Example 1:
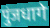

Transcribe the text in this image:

पुंजधागे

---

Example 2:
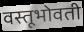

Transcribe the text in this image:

वस्तूभोवती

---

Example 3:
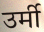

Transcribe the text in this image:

उर्मी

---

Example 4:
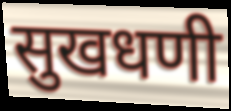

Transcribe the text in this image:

सुखधणी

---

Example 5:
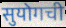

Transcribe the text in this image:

सुयोगची